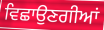
ਵਿਛਾਉਣਗੀਆਂ